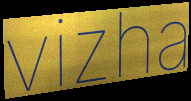
vizha